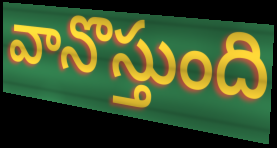
వానొస్తుంది